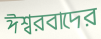
ঈশ্বরবাদের